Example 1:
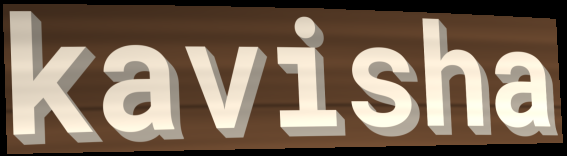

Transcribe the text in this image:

kavisha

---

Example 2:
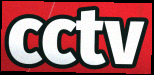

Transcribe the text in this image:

cctv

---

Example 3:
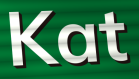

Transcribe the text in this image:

Kat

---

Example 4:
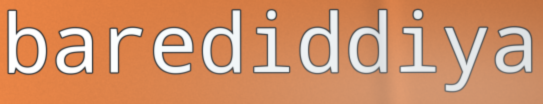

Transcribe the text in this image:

barediddiya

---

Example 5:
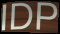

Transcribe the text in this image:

IDP